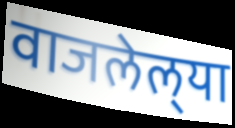
वाजलेल्या